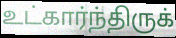
உட்கார்ந்திருக்